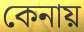
কেনায়